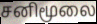
சனிமூலை